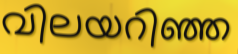
വിലയറിഞ്ഞ